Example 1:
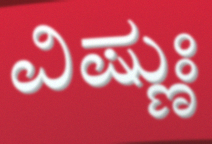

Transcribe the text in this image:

ವಿಷ್ಣುಃ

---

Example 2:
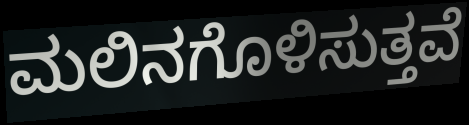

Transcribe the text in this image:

ಮಲಿನಗೊಳಿಸುತ್ತವೆ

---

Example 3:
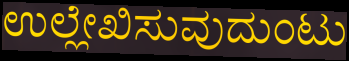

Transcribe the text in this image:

ಉಲ್ಲೇಖಿಸುವುದುಂಟು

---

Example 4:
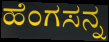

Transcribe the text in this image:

ಹೆಂಗಸನ್ನ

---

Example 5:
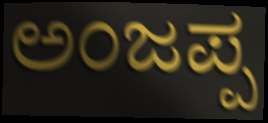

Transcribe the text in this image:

ಅಂಜಪ್ಪ